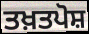
ਤਖ਼ਤਪੋਸ਼